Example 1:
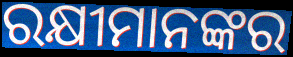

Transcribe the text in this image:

ରକ୍ଷୀମାନଙ୍କର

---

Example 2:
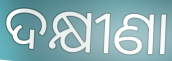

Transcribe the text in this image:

ଦକ୍ଷୀଣା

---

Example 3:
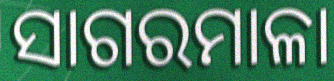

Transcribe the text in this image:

ସାଗରମାଳା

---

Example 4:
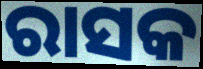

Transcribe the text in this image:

ରାସକ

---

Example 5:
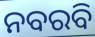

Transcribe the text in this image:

ନବରବି